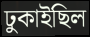
ঢুকাইছিল